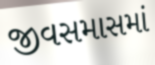
જીવસમાસમાં